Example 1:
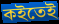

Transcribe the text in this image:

কইতেই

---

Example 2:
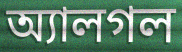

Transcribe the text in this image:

অ্যালগল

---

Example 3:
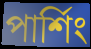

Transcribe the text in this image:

পার্শিং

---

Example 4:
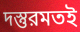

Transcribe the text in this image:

দস্তুরমতই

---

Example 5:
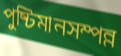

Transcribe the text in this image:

পুষ্টিমানসম্পন্ন